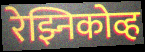
रेझ्निकोव्ह